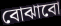
বোঝাবো